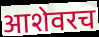
आशेवरच